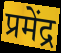
प्रमेंद्र